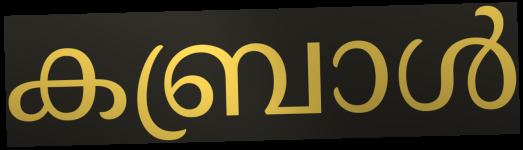
കബ്രാൾ